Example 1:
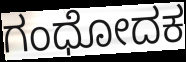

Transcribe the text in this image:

ಗಂಧೋದಕ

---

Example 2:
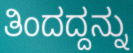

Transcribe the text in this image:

ತಿಂದದ್ದನ್ನು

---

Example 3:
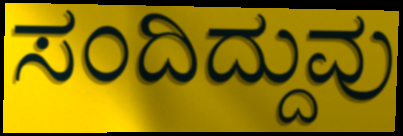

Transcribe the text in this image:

ಸಂದಿದ್ದುವು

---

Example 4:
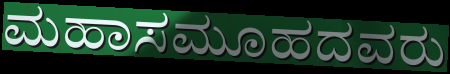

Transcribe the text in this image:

ಮಹಾಸಮೂಹದವರು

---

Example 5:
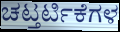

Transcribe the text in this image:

ಚಟ್ತರ್ಟಿಕೆಗಳ